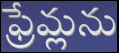
ఫ్రేమ్లను